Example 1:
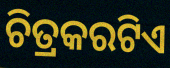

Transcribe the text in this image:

ଚିତ୍ରକରଟିଏ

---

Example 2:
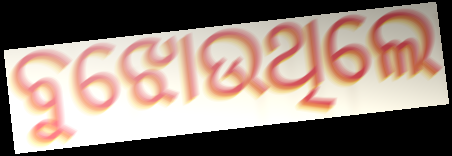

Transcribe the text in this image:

ବୁଝୋଉଥିଲେ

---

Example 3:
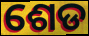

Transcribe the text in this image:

ଶେଡ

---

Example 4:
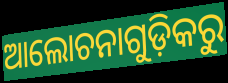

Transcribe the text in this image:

ଆଲୋଚନାଗୁଡ଼ିକରୁ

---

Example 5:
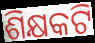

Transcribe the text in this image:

ଶିକ୍ଷକଟି